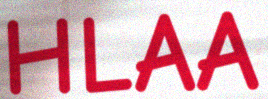
HLAA